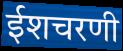
ईशचरणी